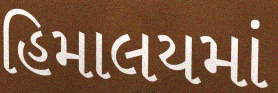
હિમાલયમાં